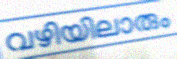
വഴിയിലാരും